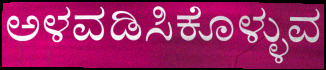
ಅಳವಡಿಸಿಕೊಳ್ಳುವ